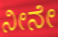
ನೀನೇ